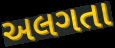
અલગતા